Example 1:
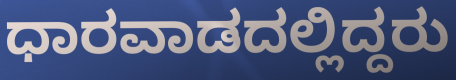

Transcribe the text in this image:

ಧಾರವಾಡದಲ್ಲಿದ್ದರು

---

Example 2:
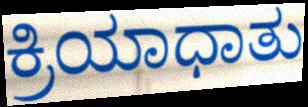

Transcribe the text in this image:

ಕ್ರಿಯಾಧಾತು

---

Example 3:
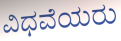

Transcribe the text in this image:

ವಿಧವೆಯರು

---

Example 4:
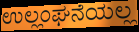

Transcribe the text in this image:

ಉಲ್ಲಂಘನೆಯಲ್ಲ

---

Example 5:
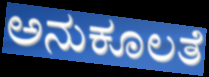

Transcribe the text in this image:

ಅನುಕೂಲತೆ